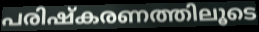
പരിഷ്കരണത്തിലൂടെ